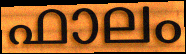
ഫാലം